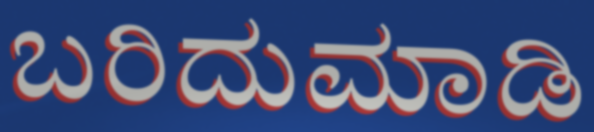
ಬರಿದುಮಾಡಿ